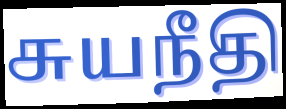
சுயநீதி